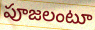
పూజలంటూ